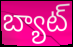
బ్యాట్